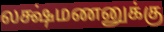
லக்ஷ்மணனுக்கு